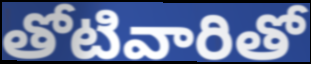
తోటివారితో